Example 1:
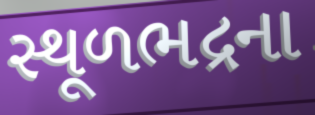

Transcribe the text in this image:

સ્થૂળભદ્રના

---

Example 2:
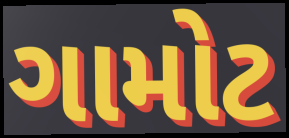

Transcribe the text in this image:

ગામોટ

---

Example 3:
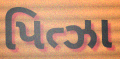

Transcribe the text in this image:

પિત્ઝા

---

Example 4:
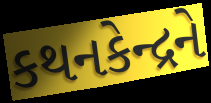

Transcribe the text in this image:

કથનકેન્દ્રને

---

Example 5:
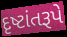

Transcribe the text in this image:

દૃષ્ટાંતરૂપે